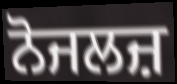
ਨੋਜਲਜ਼